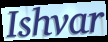
Ishvar